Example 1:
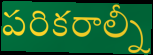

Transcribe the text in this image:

పరికరాల్నీ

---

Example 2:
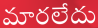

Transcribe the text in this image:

మారలేదు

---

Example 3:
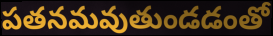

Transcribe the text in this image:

పతనమవుతుండడంతో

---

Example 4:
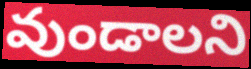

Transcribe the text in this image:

వుండాలని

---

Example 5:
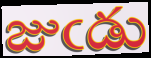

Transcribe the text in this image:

జుఁడు